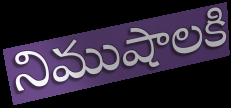
నిముషాలకి